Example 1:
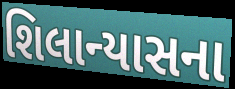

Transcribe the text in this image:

શિલાન્યાસના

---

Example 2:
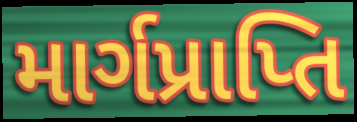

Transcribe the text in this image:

માર્ગપ્રાપ્તિ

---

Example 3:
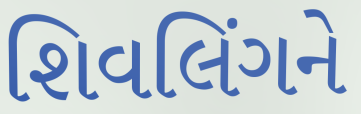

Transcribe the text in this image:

શિવલિંગને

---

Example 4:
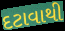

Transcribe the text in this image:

દટાવાથી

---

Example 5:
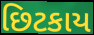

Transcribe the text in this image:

છિટકાય